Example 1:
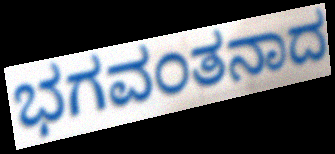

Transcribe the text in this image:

ಭಗವಂತನಾದ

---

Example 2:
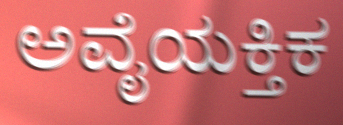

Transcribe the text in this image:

ಅವೈಯಕ್ತಿಕ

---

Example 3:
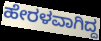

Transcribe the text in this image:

ಹೇರಳವಾಗಿದ್ದ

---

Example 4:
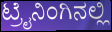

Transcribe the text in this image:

ಟ್ರೈನಿಂಗಿನಲ್ಲಿ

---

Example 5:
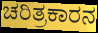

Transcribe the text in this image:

ಚರಿತ್ರಕಾರನ